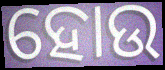
ହୋଉ